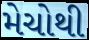
મેચોથી